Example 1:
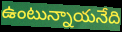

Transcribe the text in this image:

ఉంటున్నాయనేది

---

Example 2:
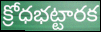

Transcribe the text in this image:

క్రోధభట్టారక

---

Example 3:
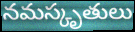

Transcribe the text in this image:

నమస్కృతులు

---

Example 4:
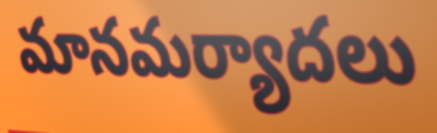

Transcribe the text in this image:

మానమర్యాదలు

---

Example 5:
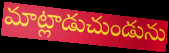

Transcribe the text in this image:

మాట్లాడుచుండును